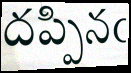
దప్పినఁ